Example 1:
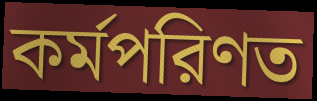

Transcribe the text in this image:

কর্মপরিণত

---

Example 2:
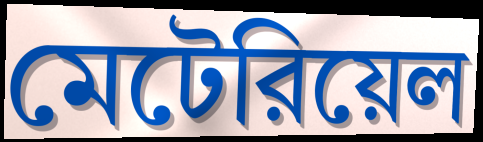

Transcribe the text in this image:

মেটেরিয়েল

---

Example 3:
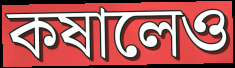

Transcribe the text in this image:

কষালেও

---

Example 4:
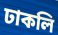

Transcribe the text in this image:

ঢাকলি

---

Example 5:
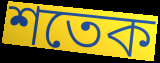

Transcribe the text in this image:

শতেক